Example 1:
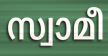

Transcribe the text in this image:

സ്വാമീ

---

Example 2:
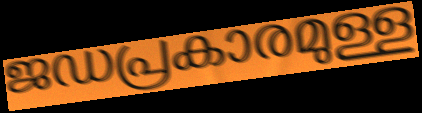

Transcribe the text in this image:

ജഡപ്രകാരമുള്ള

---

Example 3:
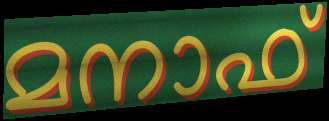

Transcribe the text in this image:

മനാഫ്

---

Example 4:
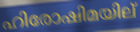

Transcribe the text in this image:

ഹിരോഷിമയില്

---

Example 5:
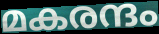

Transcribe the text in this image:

മകരന്ദം